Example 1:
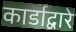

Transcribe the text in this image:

कार्डाद्वारे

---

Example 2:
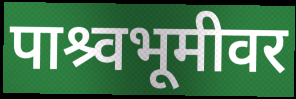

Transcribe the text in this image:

पाश्र्वभूमीवर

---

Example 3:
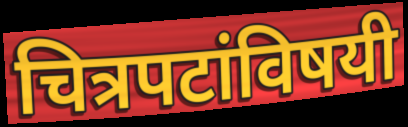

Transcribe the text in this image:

चित्रपटांविषयी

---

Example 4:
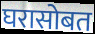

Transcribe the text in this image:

घरासोबत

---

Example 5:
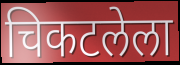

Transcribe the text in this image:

चिकटलेला